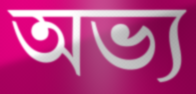
অভ্য